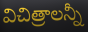
విచిత్రాలన్నీ